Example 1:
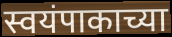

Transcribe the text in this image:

स्वयंपाकाच्या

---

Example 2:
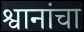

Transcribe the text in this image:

श्वानांचा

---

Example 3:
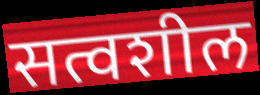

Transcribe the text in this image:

सत्वशील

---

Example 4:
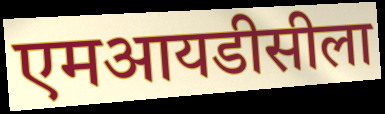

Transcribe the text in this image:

एमआयडीसीला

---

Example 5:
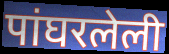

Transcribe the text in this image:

पांघरलेली